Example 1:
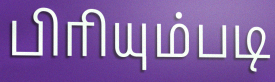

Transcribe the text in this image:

பிரியும்படி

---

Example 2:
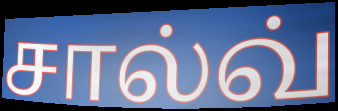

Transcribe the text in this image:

சால்வ்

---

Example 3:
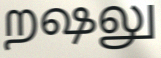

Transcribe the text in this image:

றஷலு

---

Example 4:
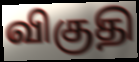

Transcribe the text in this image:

விகுதி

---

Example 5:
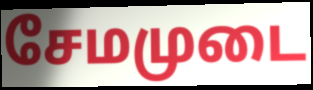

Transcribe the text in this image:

சேமமுடை